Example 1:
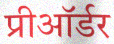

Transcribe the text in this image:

प्रीऑर्डर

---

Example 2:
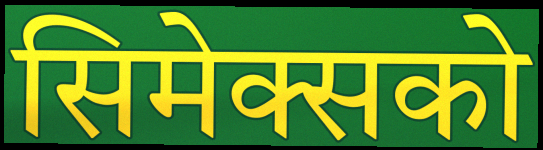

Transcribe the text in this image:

सिमेक्सको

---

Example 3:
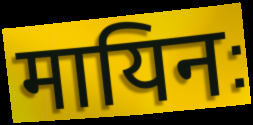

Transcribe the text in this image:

मायिनः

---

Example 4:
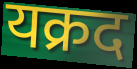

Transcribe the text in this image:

यक्रद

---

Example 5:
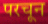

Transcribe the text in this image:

परचून